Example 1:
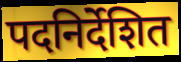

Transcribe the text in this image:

पदनिर्देशित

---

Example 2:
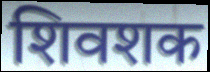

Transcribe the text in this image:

शिवशक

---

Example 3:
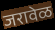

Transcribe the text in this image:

जरावेळ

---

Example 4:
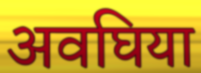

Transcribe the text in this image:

अवघिया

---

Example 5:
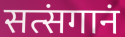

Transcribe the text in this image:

सत्संगानं